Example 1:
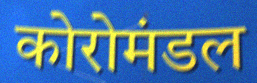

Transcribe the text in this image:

कोरोमंडल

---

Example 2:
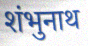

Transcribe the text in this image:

शंभुनाथ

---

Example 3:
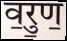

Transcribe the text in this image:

व॒रु॒ण॒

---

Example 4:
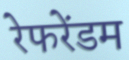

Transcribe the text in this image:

रेफरेंडम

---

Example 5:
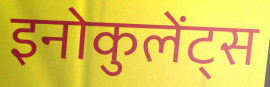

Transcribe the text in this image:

इनोकुलेंट्स